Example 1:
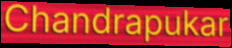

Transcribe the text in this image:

Chandrapukar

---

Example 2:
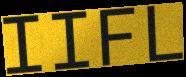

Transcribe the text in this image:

IIFL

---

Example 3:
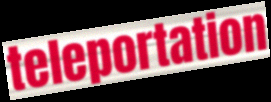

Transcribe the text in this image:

teleportation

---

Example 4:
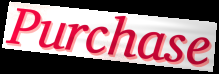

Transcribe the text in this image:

Purchase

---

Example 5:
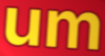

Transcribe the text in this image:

um